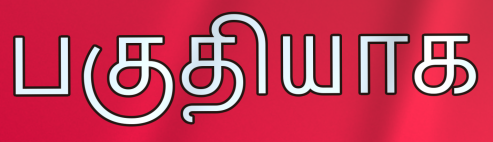
பகுதியாக